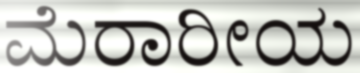
ಮೆರಾರೀಯ